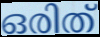
ഒരിത്